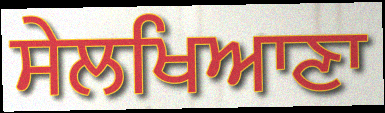
ਸੇਲਖਿਆਣਾ